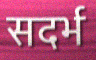
सदर्भ